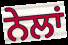
ਨੇਲਾਂ